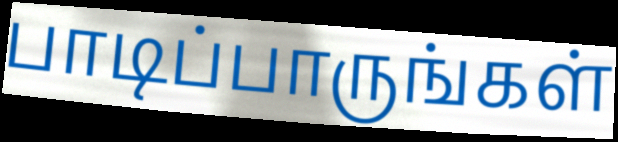
பாடிப்பாருங்கள்